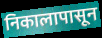
निकालापासून